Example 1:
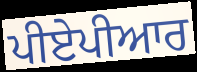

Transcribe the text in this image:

ਪੀਏਪੀਆਰ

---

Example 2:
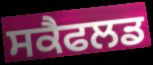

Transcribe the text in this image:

ਸਕੈਫਲਡ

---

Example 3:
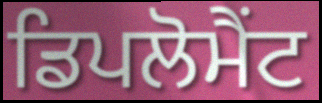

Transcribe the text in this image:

ਡਿਪਲੋਮੈਂਟ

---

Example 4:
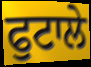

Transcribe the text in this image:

ਫੁਟਾਲੇ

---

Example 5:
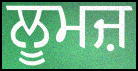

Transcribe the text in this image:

ਲੂਮਜ਼